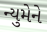
ન્યુમેને